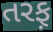
તરફ઼